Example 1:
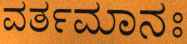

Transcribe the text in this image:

ವರ್ತಮಾನಃ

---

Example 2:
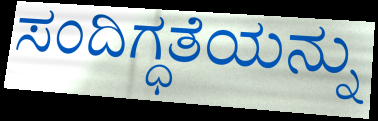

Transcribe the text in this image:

ಸಂದಿಗ್ಧತೆಯನ್ನು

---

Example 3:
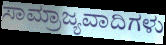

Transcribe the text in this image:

ಸಾಮ್ರಾಜ್ಯವಾದಿಗಳು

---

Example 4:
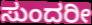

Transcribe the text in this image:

ಸುಂದರೀ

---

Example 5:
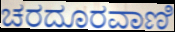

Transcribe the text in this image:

ಚರದೂರವಾಣಿ